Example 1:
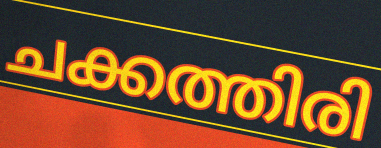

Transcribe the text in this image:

ചക്കത്തിരി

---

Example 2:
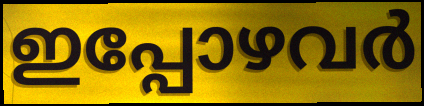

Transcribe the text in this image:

ഇപ്പോഴവർ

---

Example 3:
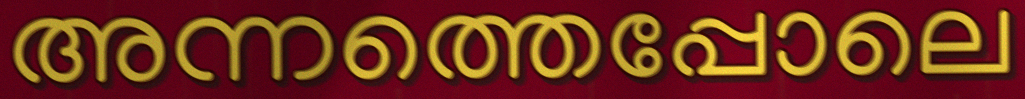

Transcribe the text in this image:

അന്നത്തെപ്പോലെ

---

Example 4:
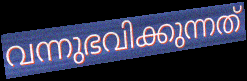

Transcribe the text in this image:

വന്നുഭവിക്കുന്നത്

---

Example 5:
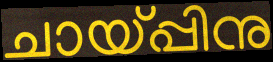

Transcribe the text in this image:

ചായ്പ്പിനു